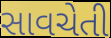
સાવચેતી